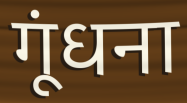
गूंधना